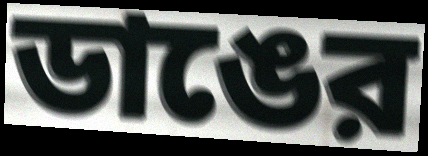
ডাঙের